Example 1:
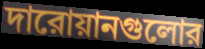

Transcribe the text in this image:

দারোয়ানগুলোর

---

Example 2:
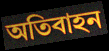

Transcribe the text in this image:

অতিবাহন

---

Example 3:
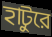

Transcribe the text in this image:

হাটুরে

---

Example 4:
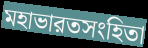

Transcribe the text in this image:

মহাভারতসংহিতা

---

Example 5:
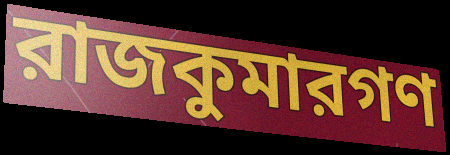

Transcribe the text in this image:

রাজকুমারগণ